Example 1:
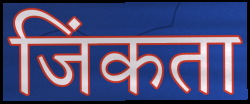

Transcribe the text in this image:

जिंकता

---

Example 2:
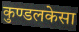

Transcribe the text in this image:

कुण्डलकेसा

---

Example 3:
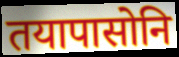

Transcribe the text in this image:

तयापासोनि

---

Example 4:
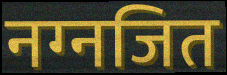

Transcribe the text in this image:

नग्नजित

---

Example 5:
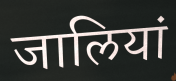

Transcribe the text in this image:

जालियां